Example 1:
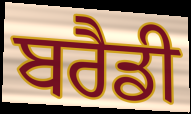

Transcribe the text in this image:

ਬਰੈਡੀ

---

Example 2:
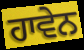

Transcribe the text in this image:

ਹਾਵੇਨ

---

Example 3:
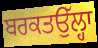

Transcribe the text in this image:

ਬਰਕਤਉੱਲ੍ਹਾ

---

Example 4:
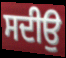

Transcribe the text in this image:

ਸਦੀਉ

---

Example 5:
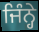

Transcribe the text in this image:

ਜਿੰਨ੍ਹੇ